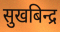
सुखबिन्द्र